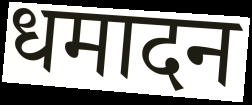
धमादन